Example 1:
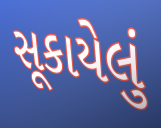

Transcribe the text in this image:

સૂકાયેલું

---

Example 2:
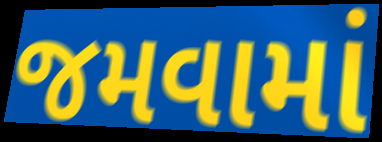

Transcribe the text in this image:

જમવામાં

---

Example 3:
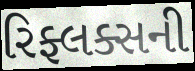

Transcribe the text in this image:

રિફ્લક્સની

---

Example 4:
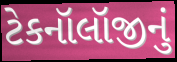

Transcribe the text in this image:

ટેકનૉલૉજીનું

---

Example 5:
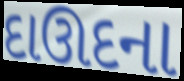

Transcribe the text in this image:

દાઊદના